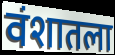
वंशातला